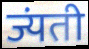
ज्यंती